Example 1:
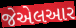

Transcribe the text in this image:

જેએલઆર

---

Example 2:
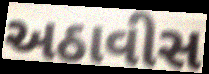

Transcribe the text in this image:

અઠાવીસ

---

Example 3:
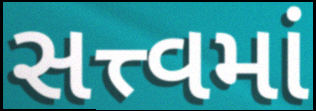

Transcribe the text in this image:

સત્ત્વમાં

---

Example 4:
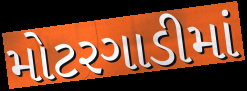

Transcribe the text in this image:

મોટરગાડીમાં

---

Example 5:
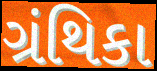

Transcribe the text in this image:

ગ્રંથિકા